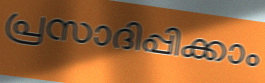
പ്രസാദിപ്പിക്കാം